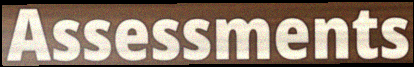
Assessments